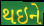
થઇને